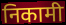
निकामी